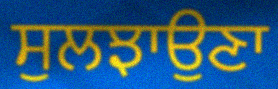
ਸੁਲਝਾਉਣਾ